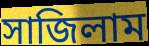
সাজিলাম